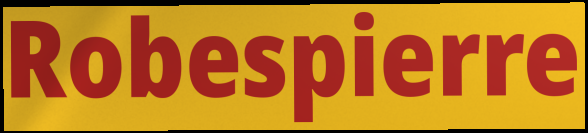
Robespierre